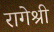
रागेश्री